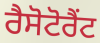
ਰੈਸੋਟੋਰੈਂਟ